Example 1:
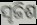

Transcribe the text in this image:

ସୃଜିଶ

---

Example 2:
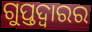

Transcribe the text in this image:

ଗୁପ୍ତଦ୍ୱାରର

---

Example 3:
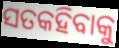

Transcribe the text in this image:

ସତକହିବାକୁ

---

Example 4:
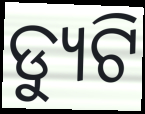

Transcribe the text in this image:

ଡ୍ୟୁଟି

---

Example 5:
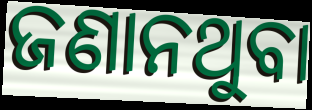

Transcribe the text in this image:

ଜଣାନଥୁବା